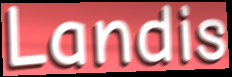
Landis